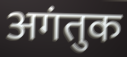
अगंतुक